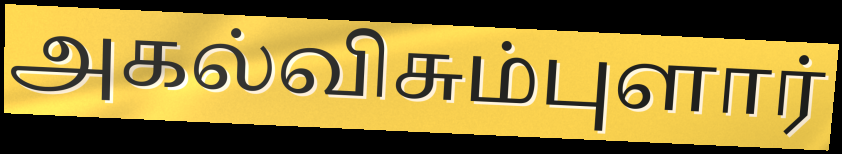
அகல்விசும்புளார்